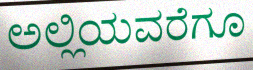
ಅಲ್ಲಿಯವರೆಗೂ